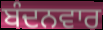
ਬੰਦਨਵਾਰ